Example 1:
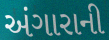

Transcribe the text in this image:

અંગારાની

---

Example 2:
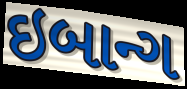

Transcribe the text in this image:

ઇબાન્ગ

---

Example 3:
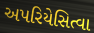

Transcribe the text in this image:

અપરિયેસિત્વા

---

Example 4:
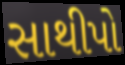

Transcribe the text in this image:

સાથીપો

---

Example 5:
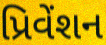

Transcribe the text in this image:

પ્રિવેંશન